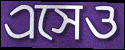
এসেও